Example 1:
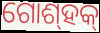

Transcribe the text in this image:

ଗୋଶ୍‍ହକ୍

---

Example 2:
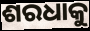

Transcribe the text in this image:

ଶରଧାକୁ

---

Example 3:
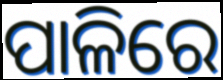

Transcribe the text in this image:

ପାଳିରେ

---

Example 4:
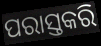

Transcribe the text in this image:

ପରାସ୍ତକରି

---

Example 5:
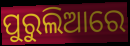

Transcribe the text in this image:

ପୁରୁଲିଆରେ